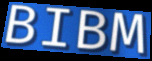
BIBM